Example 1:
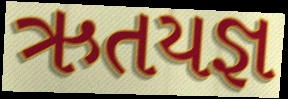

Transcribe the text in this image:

ઋતયજ્ઞ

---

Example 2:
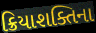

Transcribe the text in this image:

ક્રિયાશક્તિના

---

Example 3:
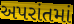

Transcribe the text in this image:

અપરાંતમાં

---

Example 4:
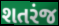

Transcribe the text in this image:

શતરંજ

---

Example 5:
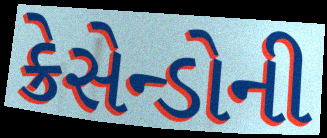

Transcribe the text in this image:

ક્રેસેન્ડોની